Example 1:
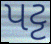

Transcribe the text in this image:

પટ્ટ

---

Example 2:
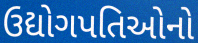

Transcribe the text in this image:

ઉદ્યોગપતિઓનો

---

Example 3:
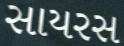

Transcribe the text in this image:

સાયરસ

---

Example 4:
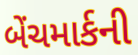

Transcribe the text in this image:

બેંચમાર્કની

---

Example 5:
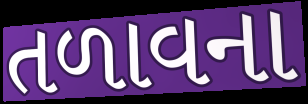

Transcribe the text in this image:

તળાવના